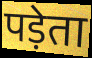
पड़ेता